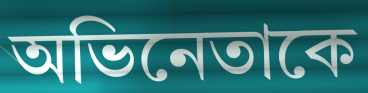
অভিনেতাকে